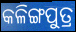
କଳିଙ୍ଗପୁତ୍ର